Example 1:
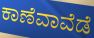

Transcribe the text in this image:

ಕಾಣೆವಾವೆಡೆ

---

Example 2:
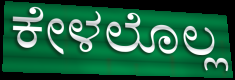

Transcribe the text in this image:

ಕೇಳಲೊಲ್ಲ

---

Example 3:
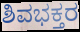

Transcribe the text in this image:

ಶಿವಭಕ್ತರ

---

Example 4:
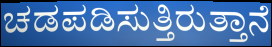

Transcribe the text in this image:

ಚಡಪಡಿಸುತ್ತಿರುತ್ತಾನೆ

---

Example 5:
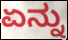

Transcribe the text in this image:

ಏನ್ನು